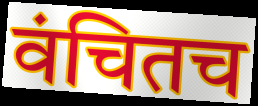
वंचितच